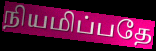
நியமிப்பதே